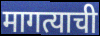
मागत्याची